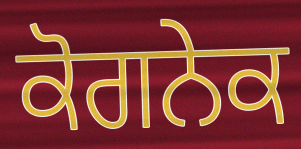
ਕੋਗਨੇਕ